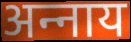
अन्नाय